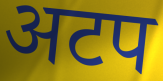
अटप